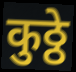
कुठ्ठे